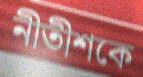
নীতীশকে